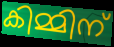
കിമ്മിന്